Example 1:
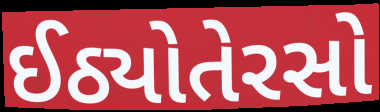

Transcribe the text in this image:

ઈઠ્યોતેરસો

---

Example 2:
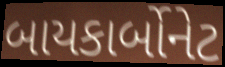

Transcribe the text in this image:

બાયકાર્બોનેટ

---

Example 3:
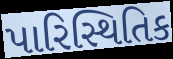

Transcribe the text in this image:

પારિસ્થિતિક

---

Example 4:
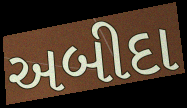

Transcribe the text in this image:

અબીદા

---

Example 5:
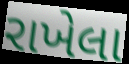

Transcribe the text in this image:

રાખેલા